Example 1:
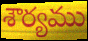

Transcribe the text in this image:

శౌర్యము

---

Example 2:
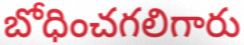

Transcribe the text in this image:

బోధించగలిగారు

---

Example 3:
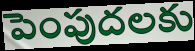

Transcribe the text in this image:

పెంపుదలకు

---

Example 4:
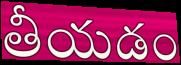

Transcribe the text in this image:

తీయడం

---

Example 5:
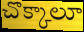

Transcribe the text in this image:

చొక్కాలూ